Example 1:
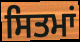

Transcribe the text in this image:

ਸਿਤਮਾਂ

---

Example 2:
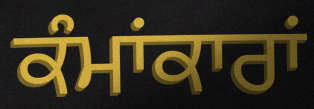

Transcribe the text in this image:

ਕੰਮਾਂਕਾਰਾਂ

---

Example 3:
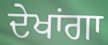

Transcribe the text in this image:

ਦੇਖਾਂਗਾ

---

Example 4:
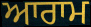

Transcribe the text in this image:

ਆਰਾਮ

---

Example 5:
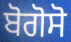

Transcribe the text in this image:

ਬੋਗੋਸੋ